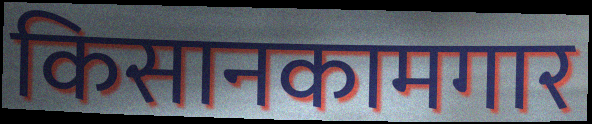
किसानकामगार